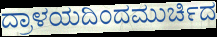
ದ್ರಾಳಯದಿಂದಮುರ್ಚಿದ